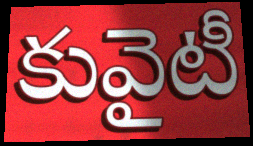
కువైటీ